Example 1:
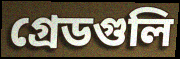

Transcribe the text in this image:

গ্রেডগুলি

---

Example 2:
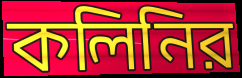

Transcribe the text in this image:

কলিনির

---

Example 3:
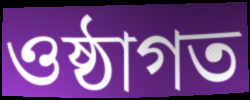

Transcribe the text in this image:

ওষ্ঠাগত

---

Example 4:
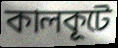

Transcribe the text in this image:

কালকূটে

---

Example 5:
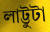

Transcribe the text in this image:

লাট্টুটা